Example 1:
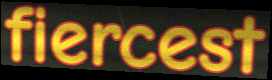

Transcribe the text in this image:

fiercest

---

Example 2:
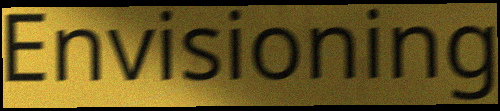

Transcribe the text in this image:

Envisioning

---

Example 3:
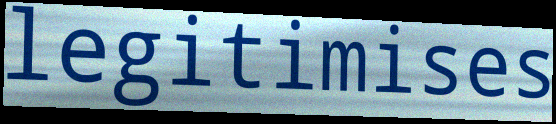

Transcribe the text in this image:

legitimises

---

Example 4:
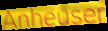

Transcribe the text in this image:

Anheuser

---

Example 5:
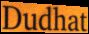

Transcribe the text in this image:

Dudhat